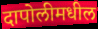
दापोलीमधील